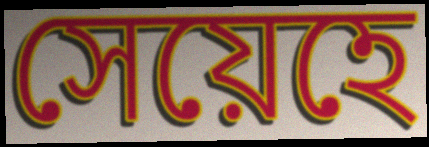
সেয়েহে